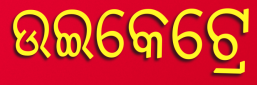
ଉଇକେଟ୍ରେ